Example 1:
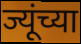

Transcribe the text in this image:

ज्यूंच्या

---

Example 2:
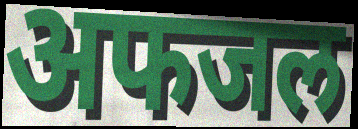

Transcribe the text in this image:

अफजल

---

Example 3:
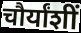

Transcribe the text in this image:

चौर्यांशीं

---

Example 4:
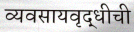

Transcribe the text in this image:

व्यवसायवृद्धीची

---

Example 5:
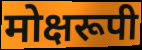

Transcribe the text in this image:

मोक्षरूपी